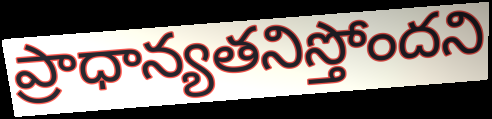
ప్రాధాన్యతనిస్తోందని